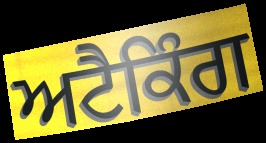
ਅਟੈਕਿੰਗ